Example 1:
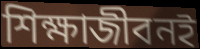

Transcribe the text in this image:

শিক্ষাজীবনই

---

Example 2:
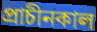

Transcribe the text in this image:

প্রাচীনকাল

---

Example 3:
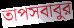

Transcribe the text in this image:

তাপসবাবুর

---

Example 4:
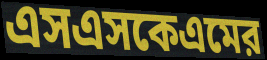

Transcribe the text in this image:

এসএসকেএমের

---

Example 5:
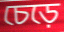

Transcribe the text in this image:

চেড়ে